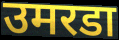
उमरडा